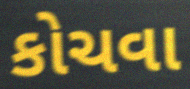
કોચવા